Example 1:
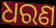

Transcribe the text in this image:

ଧରଣ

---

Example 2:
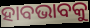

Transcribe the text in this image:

ହାବଭାବକୁ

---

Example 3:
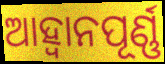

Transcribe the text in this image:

ଆହ୍ବାନପୂର୍ଣ୍ଣ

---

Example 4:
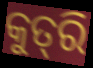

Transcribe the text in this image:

କୁତ୍‌ରି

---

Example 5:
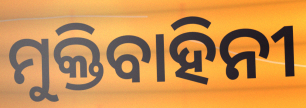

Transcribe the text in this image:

ମୁକ୍ତିବାହିନୀ